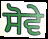
ਸੋਵੇ